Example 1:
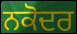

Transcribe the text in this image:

ਨਕੋਦਰ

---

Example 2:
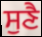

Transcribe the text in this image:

ਸੁਣੈ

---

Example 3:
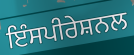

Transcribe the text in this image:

ਇੰਸਪੀਰੇਸ਼ਨਲ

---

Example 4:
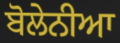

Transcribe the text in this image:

ਬੋਲੇਨੀਆ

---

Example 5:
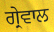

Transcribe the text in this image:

ਗ੍ਰੇਵਾਲ